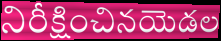
నిరీక్షించినయెడల